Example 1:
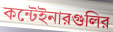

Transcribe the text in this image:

কন্টেইনারগুলির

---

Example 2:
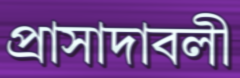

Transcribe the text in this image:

প্রাসাদাবলী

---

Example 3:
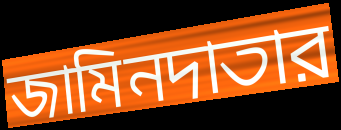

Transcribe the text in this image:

জামিনদাতার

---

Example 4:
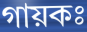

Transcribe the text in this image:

গায়কঃ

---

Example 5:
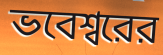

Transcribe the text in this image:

ভবেশ্বরের